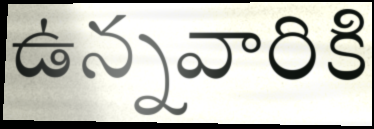
ఉన్నవారికి